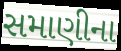
સમાણીના